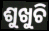
ଶୁଖୁଚି